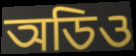
অডিও